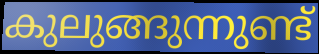
കുലുങ്ങുന്നുണ്ട്